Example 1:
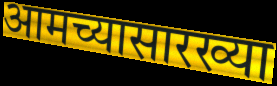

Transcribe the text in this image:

आमच्यासारख्या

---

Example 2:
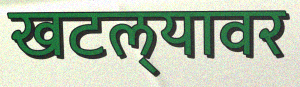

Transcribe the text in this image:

खटल्यावर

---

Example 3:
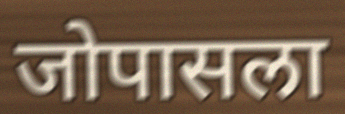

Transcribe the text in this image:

जोपासला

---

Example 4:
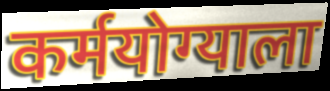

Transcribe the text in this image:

कर्मयोग्याला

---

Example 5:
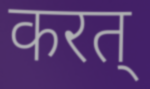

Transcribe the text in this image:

करत्